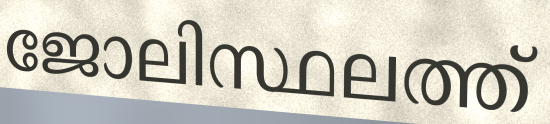
ജോലിസ്ഥലത്ത്